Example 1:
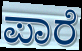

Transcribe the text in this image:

ಪಾರೆ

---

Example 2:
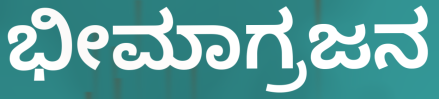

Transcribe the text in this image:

ಭೀಮಾಗ್ರಜನ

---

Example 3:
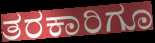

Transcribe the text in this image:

ತರಕಾರಿಗೂ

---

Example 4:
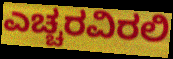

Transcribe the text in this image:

ಎಚ್ಚರವಿರಲಿ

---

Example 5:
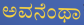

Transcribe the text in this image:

ಅವನೆಂಥಾ